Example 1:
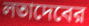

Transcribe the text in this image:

লতাদেবের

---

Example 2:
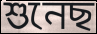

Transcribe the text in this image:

শুনেছ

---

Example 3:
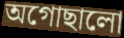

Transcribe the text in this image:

অগোছালো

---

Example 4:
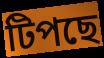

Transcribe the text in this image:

টিপছে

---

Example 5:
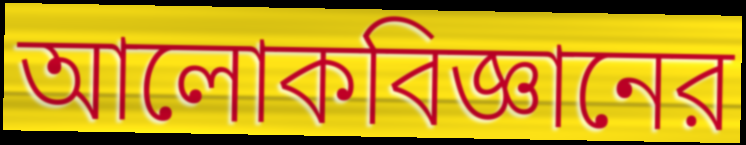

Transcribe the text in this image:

আলোকবিজ্ঞানের